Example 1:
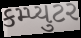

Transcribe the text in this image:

કમ્પ્યુટર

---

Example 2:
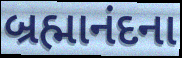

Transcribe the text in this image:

બ્રહ્માનંદના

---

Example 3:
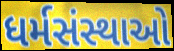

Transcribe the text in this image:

ધર્મસંસ્થાઓ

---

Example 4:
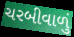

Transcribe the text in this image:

ચરબીવાળું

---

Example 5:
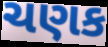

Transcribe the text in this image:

ચણક